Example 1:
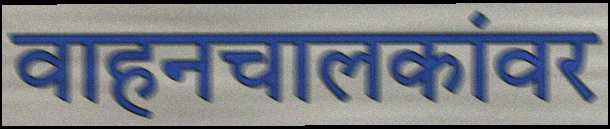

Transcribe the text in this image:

वाहनचालकांवर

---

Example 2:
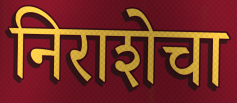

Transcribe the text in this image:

निराशेचा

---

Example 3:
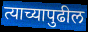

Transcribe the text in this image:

त्याच्यापुढील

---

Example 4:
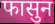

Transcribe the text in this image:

फासुन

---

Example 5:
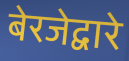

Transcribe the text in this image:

बेरजेद्वारे